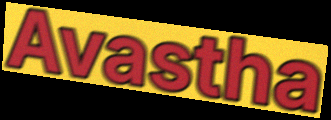
Avastha